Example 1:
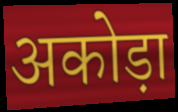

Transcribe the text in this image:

अकोड़ा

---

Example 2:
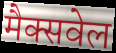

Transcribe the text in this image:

मैक्सवेल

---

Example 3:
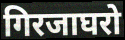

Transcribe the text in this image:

गिरजाघरो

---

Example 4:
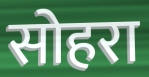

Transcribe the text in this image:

सोहरा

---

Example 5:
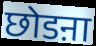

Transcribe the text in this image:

छोडऩा